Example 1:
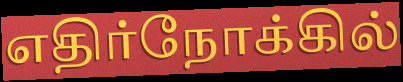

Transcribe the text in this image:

எதிர்நோக்கில்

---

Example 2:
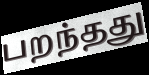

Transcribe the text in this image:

பறந்தது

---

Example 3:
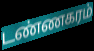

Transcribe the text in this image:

டண்ணகரம்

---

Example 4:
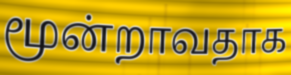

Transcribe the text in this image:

மூன்றாவதாக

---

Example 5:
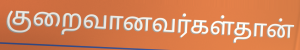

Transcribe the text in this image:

குறைவானவர்கள்தான்